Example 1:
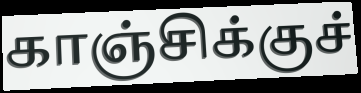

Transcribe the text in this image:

காஞ்சிக்குச்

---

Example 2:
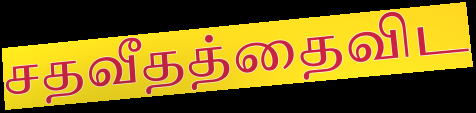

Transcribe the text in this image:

சதவீதத்தைவிட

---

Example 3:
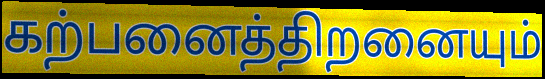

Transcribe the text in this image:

கற்பனைத்திறனையும்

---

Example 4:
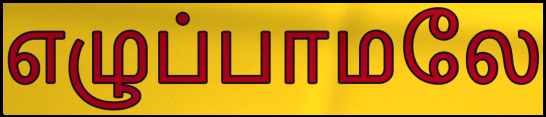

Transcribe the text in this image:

எழுப்பாமலே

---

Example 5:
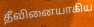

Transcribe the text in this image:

தீவினையாகிய